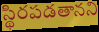
స్థిరపడతానని